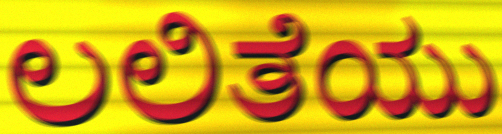
ಲಲಿತೆಯು